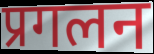
प्रगलन